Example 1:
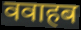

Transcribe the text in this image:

ववाहब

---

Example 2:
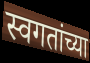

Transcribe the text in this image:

स्वगतांच्या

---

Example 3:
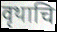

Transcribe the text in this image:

वृथाचि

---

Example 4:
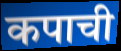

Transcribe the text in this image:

कपाची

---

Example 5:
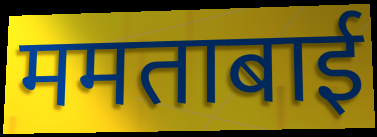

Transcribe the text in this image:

ममताबाई